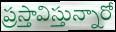
ప్రస్తావిస్తున్నారో